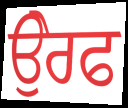
ਉੇਰਫ